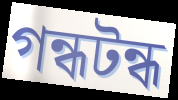
গন্ধটন্ধ